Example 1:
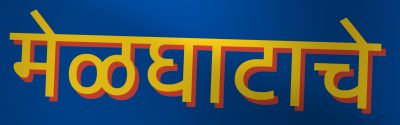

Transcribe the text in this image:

मेळघाटाचे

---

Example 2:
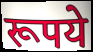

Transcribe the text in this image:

रूपये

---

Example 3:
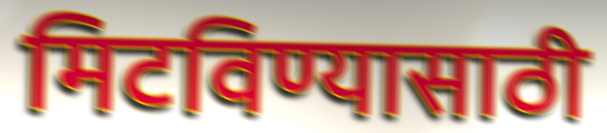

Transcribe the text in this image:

मिटविण्यासाठी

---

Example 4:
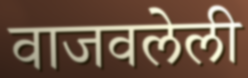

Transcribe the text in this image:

वाजवलेली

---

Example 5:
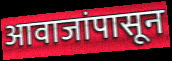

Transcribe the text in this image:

आवाजांपासून